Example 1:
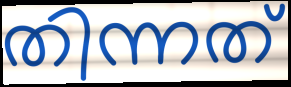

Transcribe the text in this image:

തിന്നത്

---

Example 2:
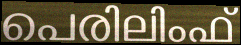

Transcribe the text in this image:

പെരിലിംഫ്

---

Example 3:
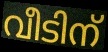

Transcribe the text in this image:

വീടിന്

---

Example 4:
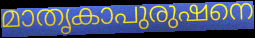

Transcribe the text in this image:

മാതൃകാപുരുഷനെ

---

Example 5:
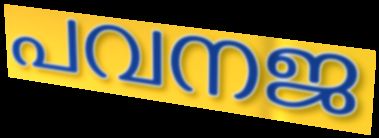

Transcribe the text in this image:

പവനജ